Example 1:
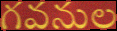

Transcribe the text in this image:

గవనుల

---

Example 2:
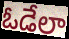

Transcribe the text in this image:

ఓడేలా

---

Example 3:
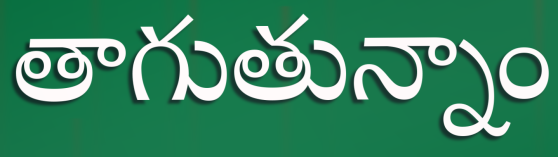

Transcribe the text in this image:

తాగుతున్నాం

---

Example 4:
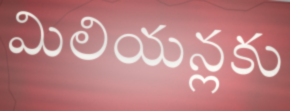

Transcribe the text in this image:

మిలియన్లకు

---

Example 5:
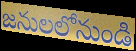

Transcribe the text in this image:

జనులలోనుండి